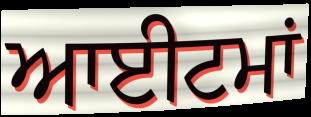
ਆਈਟਮਾਂ